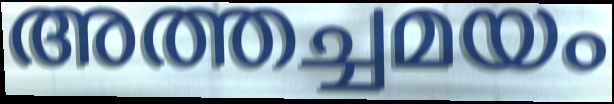
അത്തച്ചമയം